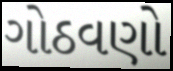
ગોઠવણો